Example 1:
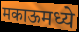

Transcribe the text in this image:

मकाऊमध्ये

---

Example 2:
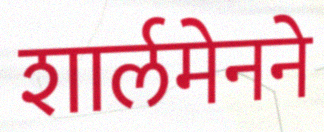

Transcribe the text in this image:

शार्लमेनने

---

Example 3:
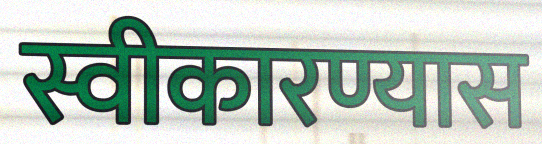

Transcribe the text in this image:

स्वीकारण्यास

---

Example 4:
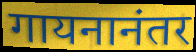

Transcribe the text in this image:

गायनानंतर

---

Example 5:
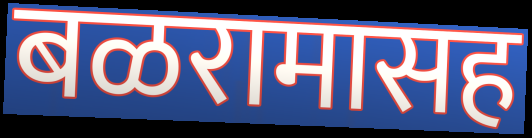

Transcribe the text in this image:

बळरामासह